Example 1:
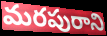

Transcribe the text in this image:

మరపురాని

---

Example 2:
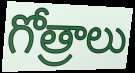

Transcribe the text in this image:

గోత్రాలు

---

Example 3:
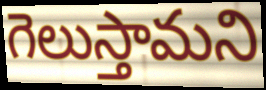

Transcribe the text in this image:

గెలుస్తామని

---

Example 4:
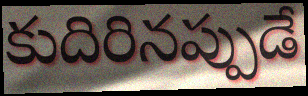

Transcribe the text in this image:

కుదిరినప్పుడే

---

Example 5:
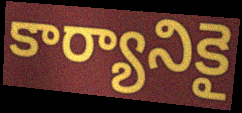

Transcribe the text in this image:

కార్యానికై